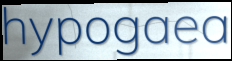
hypogaea